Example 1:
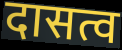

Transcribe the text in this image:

दासत्व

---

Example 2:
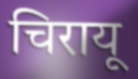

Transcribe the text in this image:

चिरायू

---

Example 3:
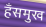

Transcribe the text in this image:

हँसमुख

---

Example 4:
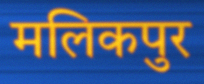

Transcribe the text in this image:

मलिकपुर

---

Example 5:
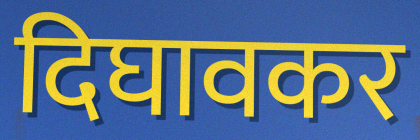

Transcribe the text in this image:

दिघावकर